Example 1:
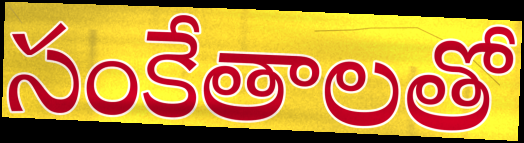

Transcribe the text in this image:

సంకేతాలతో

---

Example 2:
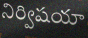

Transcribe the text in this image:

నిర్విషయా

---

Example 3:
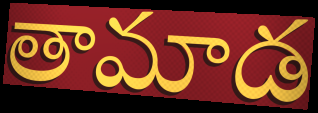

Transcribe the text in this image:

తామాడ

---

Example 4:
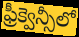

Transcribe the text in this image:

ఫ్రీక్వెన్సీలో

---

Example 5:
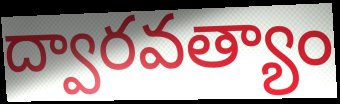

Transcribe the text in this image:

ద్వారవత్యాం